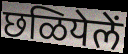
छळियेलें